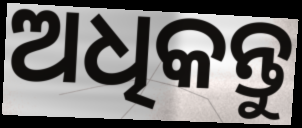
ଅଧିକନ୍ତୁ